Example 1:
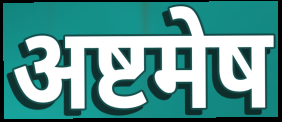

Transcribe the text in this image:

अष्टमेष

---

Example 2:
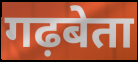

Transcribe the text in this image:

गढ़बेता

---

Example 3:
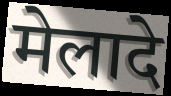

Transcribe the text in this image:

मेलादे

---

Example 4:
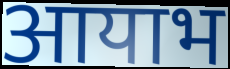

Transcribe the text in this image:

आयाभ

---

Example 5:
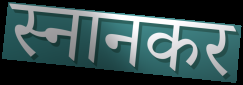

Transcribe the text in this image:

स्नानकर